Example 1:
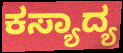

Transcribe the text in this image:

ಕಸ್ಯಾದ್ಯ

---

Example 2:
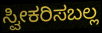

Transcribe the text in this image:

ಸ್ವೀಕರಿಸಬಲ್ಲ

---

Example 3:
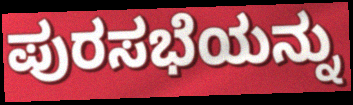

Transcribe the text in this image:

ಪುರಸಭೆಯನ್ನು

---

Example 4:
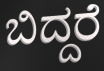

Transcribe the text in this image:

ಬಿದ್ದರೆ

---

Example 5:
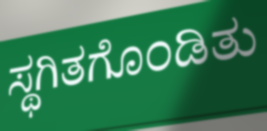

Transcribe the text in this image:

ಸ್ಥಗಿತಗೊಂಡಿತು